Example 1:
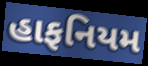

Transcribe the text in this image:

હાફનિયમ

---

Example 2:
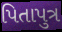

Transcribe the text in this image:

પિતાપુત્ર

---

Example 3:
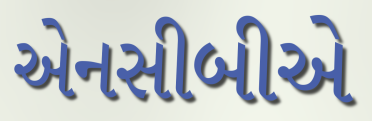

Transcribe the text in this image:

એનસીબીએ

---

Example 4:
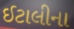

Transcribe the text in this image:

ઈટાલીના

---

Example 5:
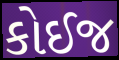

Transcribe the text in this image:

કોઈજ